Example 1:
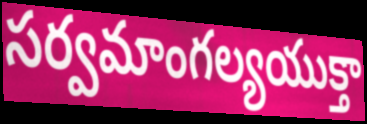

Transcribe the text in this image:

సర్వమాంగల్యయుక్తా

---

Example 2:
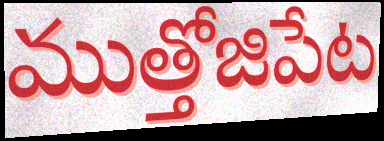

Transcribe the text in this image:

ముత్తోజిపేట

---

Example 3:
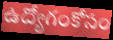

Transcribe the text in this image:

ఉద్యోగంకోసం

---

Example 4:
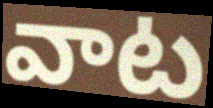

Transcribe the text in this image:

వాట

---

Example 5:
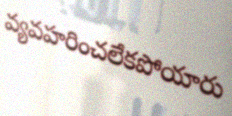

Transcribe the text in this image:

వ్యవహరించలేకపోయారు